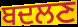
ਬਦਲਣ